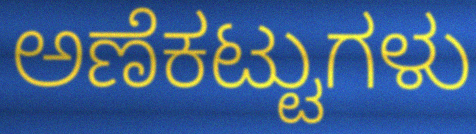
ಅಣೆಕಟ್ಟುಗಳು